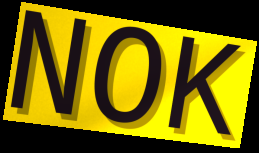
NOK